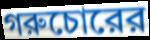
গরুচোরের